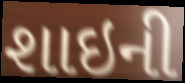
શાઇની